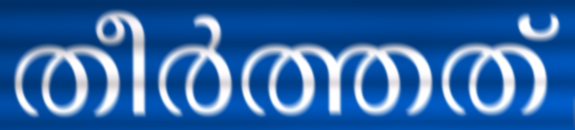
തീർത്തത്